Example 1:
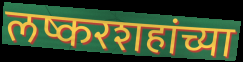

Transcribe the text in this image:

लष्करशहांच्या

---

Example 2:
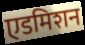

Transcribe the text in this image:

एडमिशन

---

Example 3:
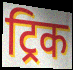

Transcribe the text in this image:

ट्रिक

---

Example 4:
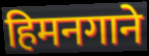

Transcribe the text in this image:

हिमनगाने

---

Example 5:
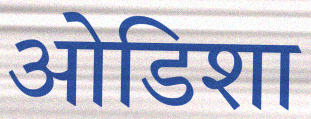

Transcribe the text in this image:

ओडिशा